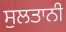
ਸੁਲਤਾਨੀ